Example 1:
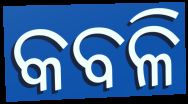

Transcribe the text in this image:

କବଳି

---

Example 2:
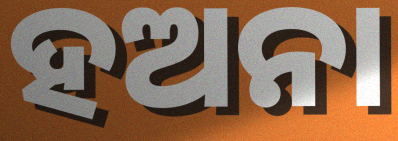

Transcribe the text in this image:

ହଅନା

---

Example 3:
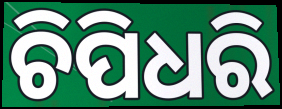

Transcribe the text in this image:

ଚିପିଧରି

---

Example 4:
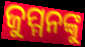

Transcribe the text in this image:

ଜୁମ୍ମନଙ୍କୁ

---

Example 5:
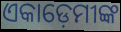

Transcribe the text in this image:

ଏକାଡ଼େମୀଙ୍କ